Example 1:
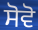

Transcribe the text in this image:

ਸੋਵੋ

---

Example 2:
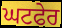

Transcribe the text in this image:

ਘਟਫੇਰ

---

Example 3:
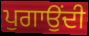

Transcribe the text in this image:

ਪੁਗਾਉਂਦੀ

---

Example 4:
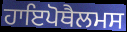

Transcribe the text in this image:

ਹਾਇਪੋਥੈਲਮਸ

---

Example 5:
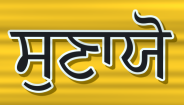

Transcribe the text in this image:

ਸੁਣਾਯੋ